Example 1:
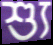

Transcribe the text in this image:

শ্যু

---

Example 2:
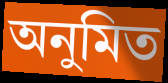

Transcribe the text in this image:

অনুমিত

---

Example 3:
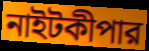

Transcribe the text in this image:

নাইটকীপার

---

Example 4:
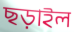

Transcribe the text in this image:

ছড়াইল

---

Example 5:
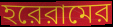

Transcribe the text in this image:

হরেরামের